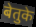
बेतुके